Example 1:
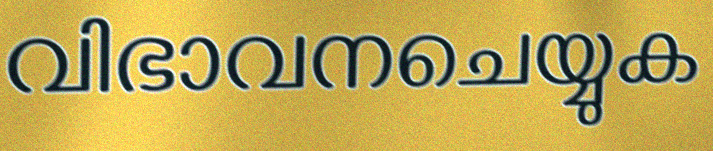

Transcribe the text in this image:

വിഭാവനചെയ്യുക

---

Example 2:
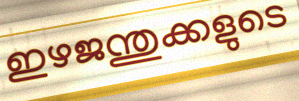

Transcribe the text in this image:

ഇഴജന്തുക്കളുടെ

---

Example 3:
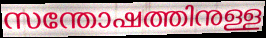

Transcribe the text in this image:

സന്തോഷത്തിനുള്ള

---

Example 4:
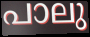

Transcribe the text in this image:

പാലു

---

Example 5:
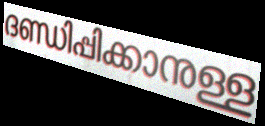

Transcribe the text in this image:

ദണ്ഡിപ്പിക്കാനുള്ള